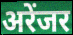
अरेंजर